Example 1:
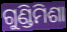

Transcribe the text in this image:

ଗୁଣ୍ଡିମିଶା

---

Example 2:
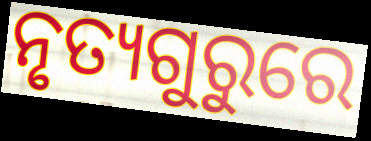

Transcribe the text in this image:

ନୃତ୍ୟଗୁରୁରେ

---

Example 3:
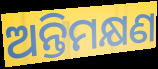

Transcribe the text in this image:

ଅନ୍ତିମକ୍ଷଣ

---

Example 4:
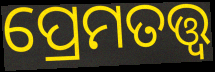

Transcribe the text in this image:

ପ୍ରେମତତ୍ତ୍ୱ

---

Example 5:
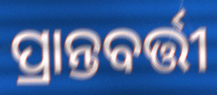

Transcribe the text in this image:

ପ୍ରାନ୍ତବର୍ତ୍ତୀ